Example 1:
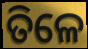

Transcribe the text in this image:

ତିଳେ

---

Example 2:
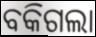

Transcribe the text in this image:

ବକିଗଲା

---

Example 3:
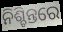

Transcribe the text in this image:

ନିଶ୍ଚିନ୍ତରେ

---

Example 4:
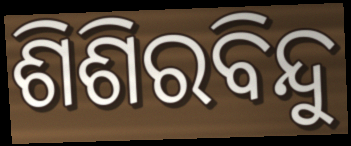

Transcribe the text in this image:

ଶିଶିରବିନ୍ଦୁ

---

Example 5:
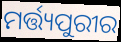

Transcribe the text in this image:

ମର୍ତ୍ତ୍ୟପୁରୀର